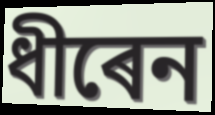
ধীৰেন